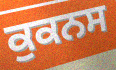
ਕੁਕਨਸ